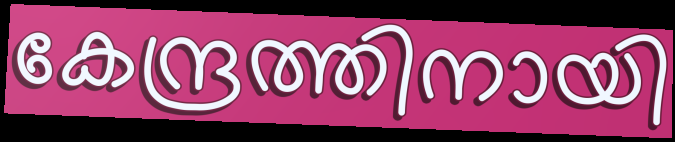
കേന്ദ്രത്തിനായി